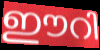
ഈറി